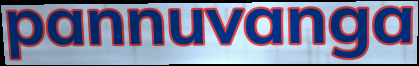
pannuvanga